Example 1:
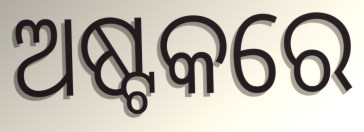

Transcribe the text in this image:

ଅଷ୍ଟକରେ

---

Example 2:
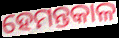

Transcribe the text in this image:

ହେମନ୍ତକାଳ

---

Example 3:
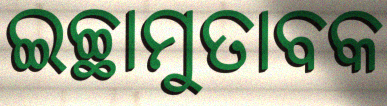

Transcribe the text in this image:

ଇଚ୍ଛାମୁତାବକ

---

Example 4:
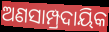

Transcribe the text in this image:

ଅଣସାମ୍ପ୍ରଦାୟିକ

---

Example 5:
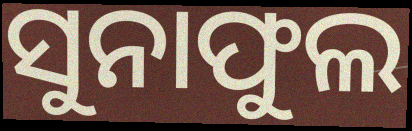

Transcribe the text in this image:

ସୁନାଫୁଲ